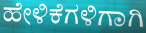
ಹೇಳಿಕೆಗಳಿಗಾಗಿ